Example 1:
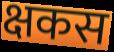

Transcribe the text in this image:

क्षकस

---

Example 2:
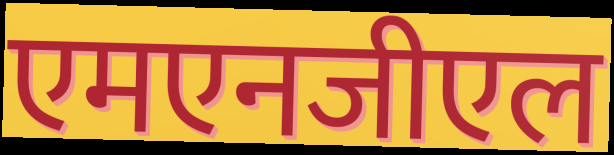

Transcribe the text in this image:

एमएनजीएल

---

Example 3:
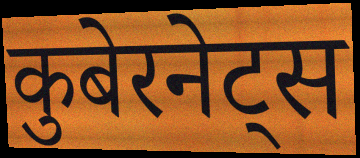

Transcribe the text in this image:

कुबेरनेट्स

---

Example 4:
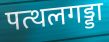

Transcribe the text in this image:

पत्थलगड्डा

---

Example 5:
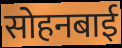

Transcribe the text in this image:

सोहनबाई